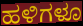
ಹಳಿಗಳೂ